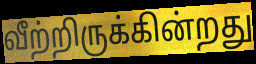
வீற்றிருக்கின்றது